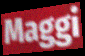
Maggi